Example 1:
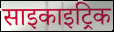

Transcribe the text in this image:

साइकाइट्रिक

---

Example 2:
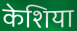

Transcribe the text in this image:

केशिया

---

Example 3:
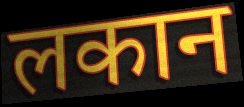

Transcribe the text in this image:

लकान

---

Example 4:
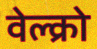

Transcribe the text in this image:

वेल्क्रो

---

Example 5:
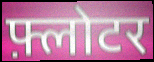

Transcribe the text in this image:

फ़्लोटर